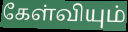
கேள்வியும்